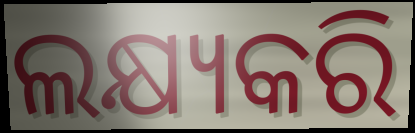
ଲକ୍ଷ୍ୟକରି